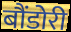
बौंडोरी